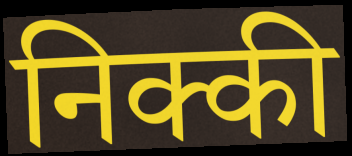
निक्की